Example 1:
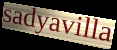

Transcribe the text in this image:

sadyavilla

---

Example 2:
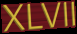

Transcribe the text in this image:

XLVII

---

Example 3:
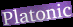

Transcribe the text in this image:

Platonic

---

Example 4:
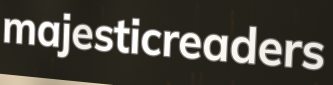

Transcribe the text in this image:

majesticreaders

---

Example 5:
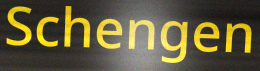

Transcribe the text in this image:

Schengen